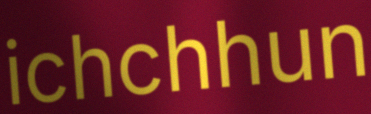
ichchhun